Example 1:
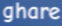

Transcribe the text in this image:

ghare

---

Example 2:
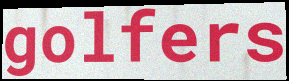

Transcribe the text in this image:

golfers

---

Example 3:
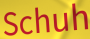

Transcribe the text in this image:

Schuh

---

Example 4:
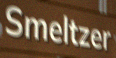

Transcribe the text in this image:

Smeltzer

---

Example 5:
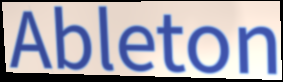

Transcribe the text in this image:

Ableton